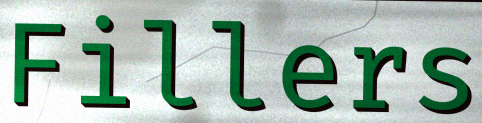
Fillers